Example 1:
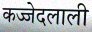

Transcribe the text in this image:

कज्जेदलाली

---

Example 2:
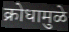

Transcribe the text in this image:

क्रोधामुळे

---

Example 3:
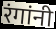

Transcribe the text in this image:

रंगांनी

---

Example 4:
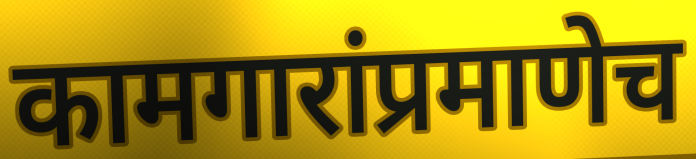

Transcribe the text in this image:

कामगारांप्रमाणेच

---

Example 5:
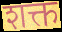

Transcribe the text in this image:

शक्त